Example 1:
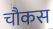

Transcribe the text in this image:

चौकस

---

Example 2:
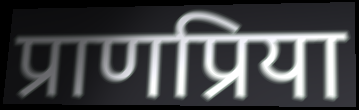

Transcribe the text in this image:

प्राणप्रिया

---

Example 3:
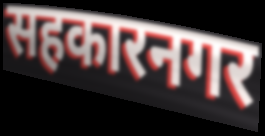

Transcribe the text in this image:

सहकारनगर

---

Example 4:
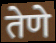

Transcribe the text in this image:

तेणे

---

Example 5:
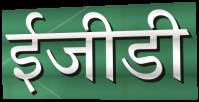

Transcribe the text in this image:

ईजीडी